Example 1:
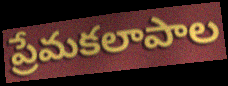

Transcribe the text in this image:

ప్రేమకలాపాల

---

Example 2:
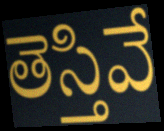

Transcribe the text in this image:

తెస్తివే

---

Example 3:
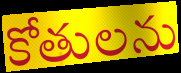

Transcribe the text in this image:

కోతులను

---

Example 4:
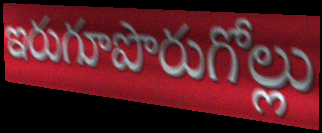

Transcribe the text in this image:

ఇరుగూపొరుగోల్లు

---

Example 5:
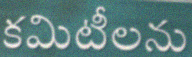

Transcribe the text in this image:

కమిటీలను